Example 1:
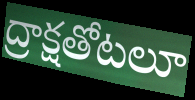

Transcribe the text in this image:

ద్రాక్షతోటలూ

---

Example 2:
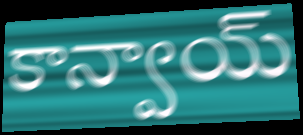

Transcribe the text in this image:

కాన్వాయ్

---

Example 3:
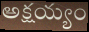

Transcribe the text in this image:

అక్షయ్యం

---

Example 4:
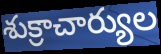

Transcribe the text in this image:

శుక్రాచార్యుల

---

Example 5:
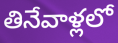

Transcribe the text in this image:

తినేవాళ్లలో